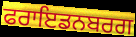
ਫਰਾਇਡਨਬਰਗ